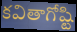
కవితాగోష్టి